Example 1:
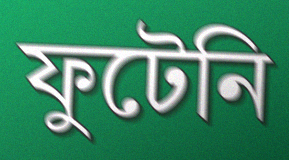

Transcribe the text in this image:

ফুটেনি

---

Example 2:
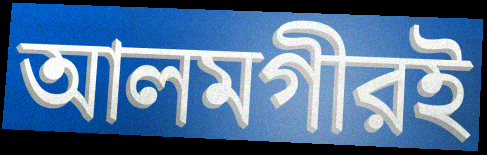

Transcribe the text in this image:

আলমগীরই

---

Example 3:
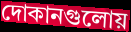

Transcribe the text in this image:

দোকানগুলোয়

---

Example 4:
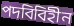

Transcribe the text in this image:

পদবিবিহীন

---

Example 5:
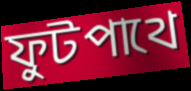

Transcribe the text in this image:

ফুটপাথে